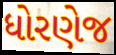
ધોરણેજ